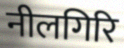
नीलगिरि